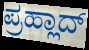
ಪ್ರಹ್ಲಾದ್